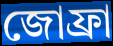
জোফ্রা